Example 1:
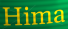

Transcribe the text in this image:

Hima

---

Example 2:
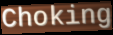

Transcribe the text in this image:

Choking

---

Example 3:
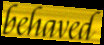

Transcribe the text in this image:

behaved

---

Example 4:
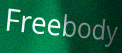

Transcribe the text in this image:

Freebody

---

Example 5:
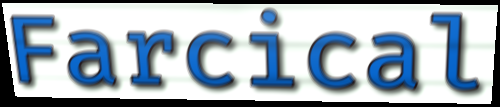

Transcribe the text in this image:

Farcical